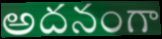
అదనంగా